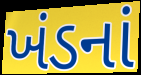
ખંડનાં